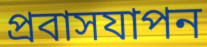
প্রবাসযাপন